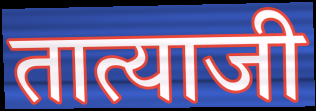
तात्याजी